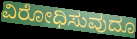
ವಿರೋಧಿಸುವುದೂ